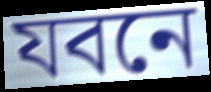
যবনে